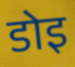
डोइ